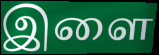
இளை